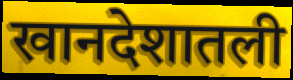
खानदेशातली